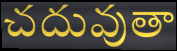
చదువుతా